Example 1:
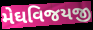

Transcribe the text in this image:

મેઘવિજયજી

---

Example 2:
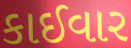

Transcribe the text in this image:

કાઈવાર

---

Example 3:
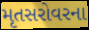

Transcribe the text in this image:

મૃતસરોવરના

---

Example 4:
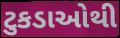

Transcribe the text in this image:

ટુકડાઓથી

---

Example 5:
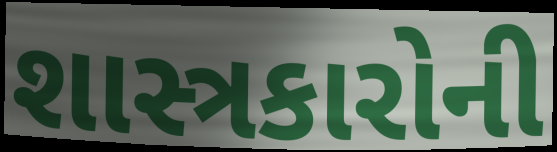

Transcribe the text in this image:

શાસ્ત્રકારોની